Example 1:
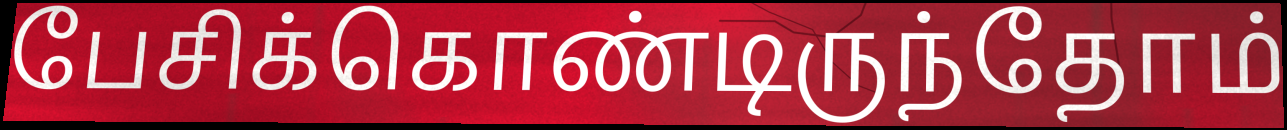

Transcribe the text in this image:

பேசிக்கொண்டிருந்தோம்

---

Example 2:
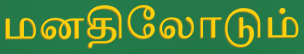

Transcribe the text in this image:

மனதிலோடும்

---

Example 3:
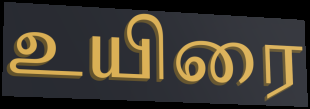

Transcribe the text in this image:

உயிரை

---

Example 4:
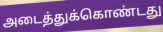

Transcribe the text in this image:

அடைத்துக்கொண்டது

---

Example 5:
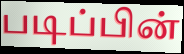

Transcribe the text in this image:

படிப்பின்